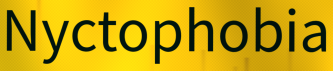
Nyctophobia